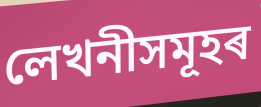
লেখনীসমূহৰ